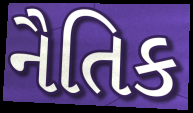
નૈતિક